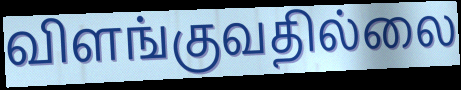
விளங்குவதில்லை